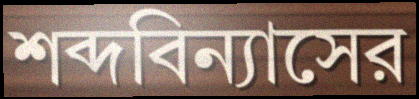
শব্দবিন্যাসের